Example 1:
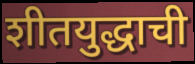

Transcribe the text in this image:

शीतयुद्धाची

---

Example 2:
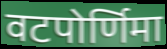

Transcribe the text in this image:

वटपोर्णिमा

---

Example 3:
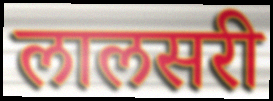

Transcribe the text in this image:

लालसरी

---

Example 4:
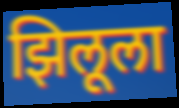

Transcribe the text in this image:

झिलूला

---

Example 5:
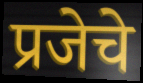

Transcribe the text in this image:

प्रजेचे